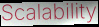
Scalability